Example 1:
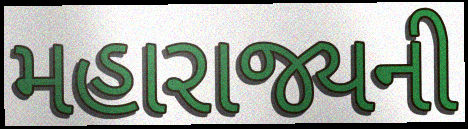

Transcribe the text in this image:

મહારાજ્યની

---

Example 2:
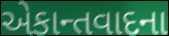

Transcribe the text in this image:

એકાન્તવાદના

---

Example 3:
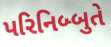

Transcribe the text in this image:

પરિનિબ્બુતે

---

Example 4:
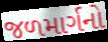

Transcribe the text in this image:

જળમાર્ગનો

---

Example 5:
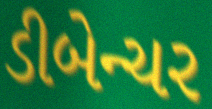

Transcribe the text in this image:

ડીબેન્ચર